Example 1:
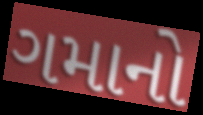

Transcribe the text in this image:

ગમાનો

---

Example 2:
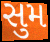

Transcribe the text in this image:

સુમ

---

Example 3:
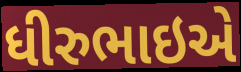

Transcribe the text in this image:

ધીરુભાઇએ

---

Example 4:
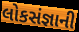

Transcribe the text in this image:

લોકસંજ્ઞાની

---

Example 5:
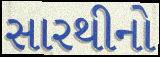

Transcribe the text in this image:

સારથીનો